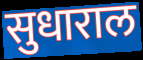
सुधाराल